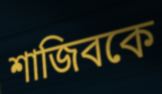
শাজিবকে